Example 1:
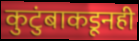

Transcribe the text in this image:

कुटुंबाकडूनही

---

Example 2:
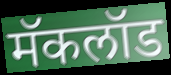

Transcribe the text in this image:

मॅकलॉड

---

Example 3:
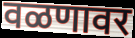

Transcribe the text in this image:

वळणावर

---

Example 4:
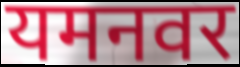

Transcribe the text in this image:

यमनवर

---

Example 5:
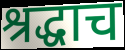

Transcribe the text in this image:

श्रद्धाच